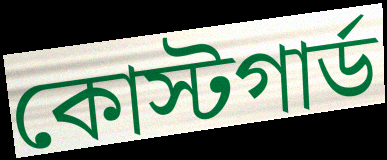
কোস্টগার্ড